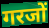
गरजों